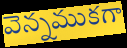
వెన్నముకగా